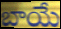
బాయే